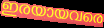
ഇരയായവരെ